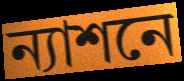
ন্যাশনে